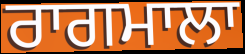
ਰਾਗਮਾਲਾ